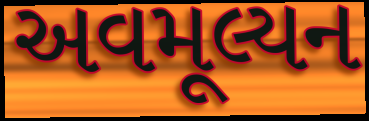
અવમૂલ્યન